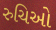
રુચિઓ